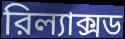
রিল্যাক্সড